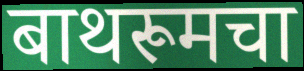
बाथरूमचा